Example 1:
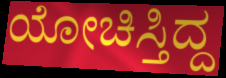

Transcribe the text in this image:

ಯೋಚಿಸ್ತಿದ್ದ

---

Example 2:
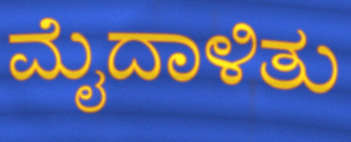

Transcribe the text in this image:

ಮೈದಾಳಿತು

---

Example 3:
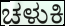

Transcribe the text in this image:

ಚಳುಕಿ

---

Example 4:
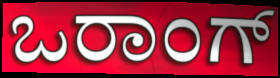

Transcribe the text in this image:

ಒರಾಂಗ್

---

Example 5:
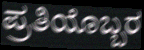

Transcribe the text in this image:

ಪ್ರತಿಯೊಬ್ಬರ